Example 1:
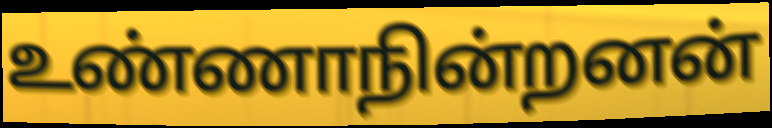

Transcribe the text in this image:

உண்ணாநின்றனன்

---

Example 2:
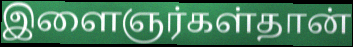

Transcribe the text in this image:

இளைஞர்கள்தான்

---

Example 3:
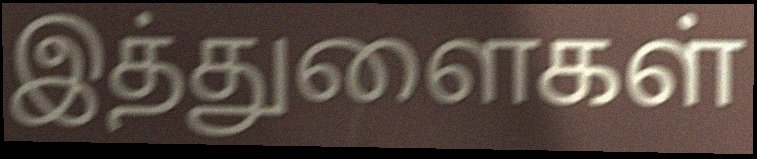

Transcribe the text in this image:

இத்துளைகள்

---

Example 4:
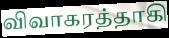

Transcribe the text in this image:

விவாகரத்தாகி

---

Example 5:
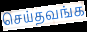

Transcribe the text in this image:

செய்தவங்க